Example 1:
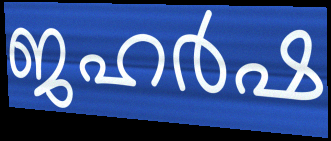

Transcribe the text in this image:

ജഹർഷ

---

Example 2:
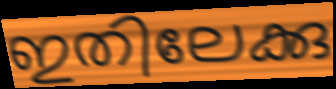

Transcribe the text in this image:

ഇതിലേക്കു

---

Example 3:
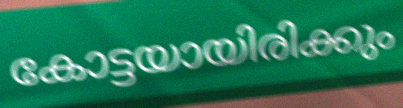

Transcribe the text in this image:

കോട്ടയായിരിക്കും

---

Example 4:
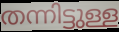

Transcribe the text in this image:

തന്നിട്ടുള്ള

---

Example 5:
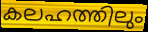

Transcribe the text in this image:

കലഹത്തിലും